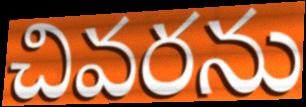
చివరను